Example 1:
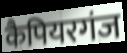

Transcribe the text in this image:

कैपियरगंज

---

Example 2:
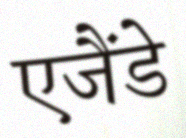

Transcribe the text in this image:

एजैंडे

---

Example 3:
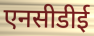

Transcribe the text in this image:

एनसीडीई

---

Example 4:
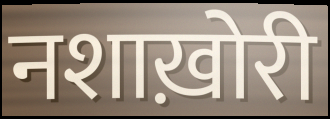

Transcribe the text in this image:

नशाख़ोरी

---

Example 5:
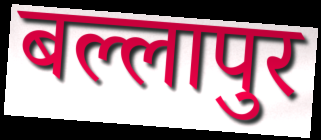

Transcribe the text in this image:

बल्लापुर